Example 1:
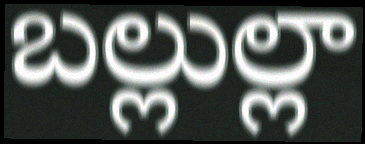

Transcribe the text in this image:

బల్లుల్లా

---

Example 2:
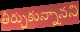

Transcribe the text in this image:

తీర్చుకున్నానని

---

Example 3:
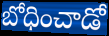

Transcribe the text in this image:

బోధించాడో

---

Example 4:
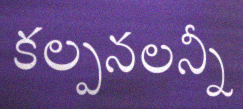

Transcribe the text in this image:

కల్పనలన్నీ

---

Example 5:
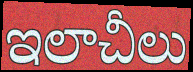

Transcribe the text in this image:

ఇలాచీలు